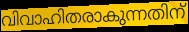
വിവാഹിതരാകുന്നതിന്